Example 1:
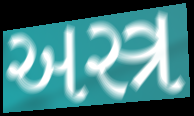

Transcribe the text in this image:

અસ્ત્ર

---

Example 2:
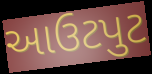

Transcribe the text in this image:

આઉટપુટ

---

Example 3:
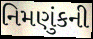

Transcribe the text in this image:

નિમણુંકની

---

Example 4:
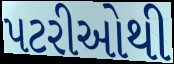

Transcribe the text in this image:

પટરીઓથી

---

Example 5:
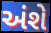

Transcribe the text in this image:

અંશે